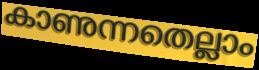
കാണുന്നതെല്ലാം